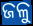
ଜଳୁ